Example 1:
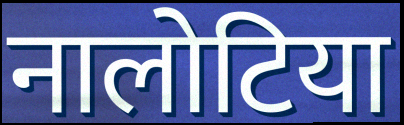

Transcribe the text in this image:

नालोटिया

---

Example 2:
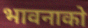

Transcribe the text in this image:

भावनाको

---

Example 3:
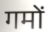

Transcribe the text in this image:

गमों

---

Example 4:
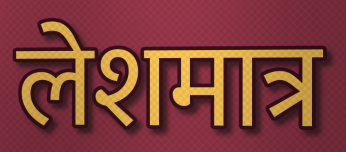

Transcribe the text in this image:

लेशमात्र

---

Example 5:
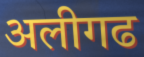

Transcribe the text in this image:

अलीगढ